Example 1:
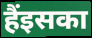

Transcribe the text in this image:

हैंइसका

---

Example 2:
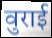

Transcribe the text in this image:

वुराई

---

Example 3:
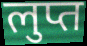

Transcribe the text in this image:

लुप्‍त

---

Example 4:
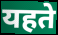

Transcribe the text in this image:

यहते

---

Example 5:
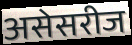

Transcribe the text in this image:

असेसरीज